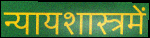
न्यायशास्त्रमें